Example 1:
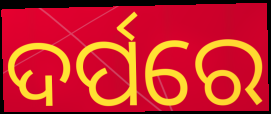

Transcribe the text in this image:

ଦର୍ପରେ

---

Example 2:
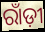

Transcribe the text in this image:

ରାଁଡ଼ୀ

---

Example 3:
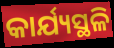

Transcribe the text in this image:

କାର୍ଯ୍ୟସ୍ଥଳି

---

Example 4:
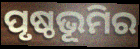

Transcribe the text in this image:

ପୃଷ୍ଠଭୂମିର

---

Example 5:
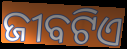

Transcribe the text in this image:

ଜୀବଟିଏ